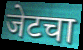
जेटचा